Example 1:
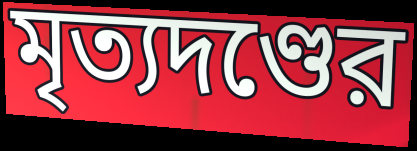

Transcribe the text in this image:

মৃত্যদণ্ডের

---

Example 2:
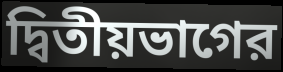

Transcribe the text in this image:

দ্বিতীয়ভাগের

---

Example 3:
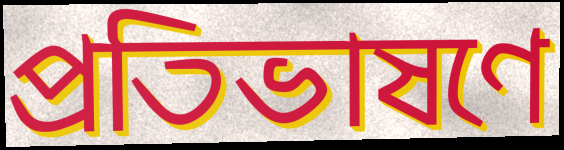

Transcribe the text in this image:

প্রতিভাষণে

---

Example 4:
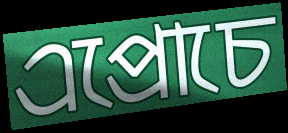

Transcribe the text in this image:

এপ্রোচে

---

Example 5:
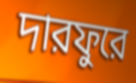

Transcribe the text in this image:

দারফুরে